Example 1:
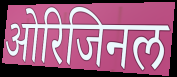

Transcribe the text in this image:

ओरिजिनल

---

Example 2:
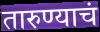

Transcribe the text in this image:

तारुण्याचं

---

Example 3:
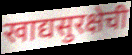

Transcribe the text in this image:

खाद्यसुरक्षेची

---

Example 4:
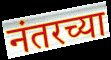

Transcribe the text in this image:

नंतरच्या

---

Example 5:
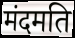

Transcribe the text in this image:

मंदमति